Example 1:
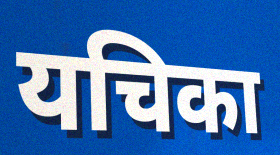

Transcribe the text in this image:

यचिका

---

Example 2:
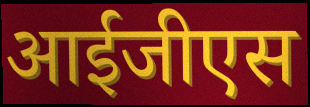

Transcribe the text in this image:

आईजीएस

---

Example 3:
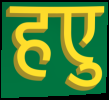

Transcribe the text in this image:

हएु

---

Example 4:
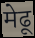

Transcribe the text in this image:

मेढू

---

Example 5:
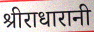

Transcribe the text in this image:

श्रीराधारानी